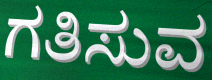
ಗತಿಸುವ